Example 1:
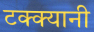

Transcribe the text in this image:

टक्क्यानी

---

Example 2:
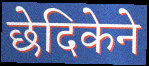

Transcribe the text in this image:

छेदिकेने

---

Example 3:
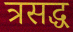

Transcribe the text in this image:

त्रसद्ध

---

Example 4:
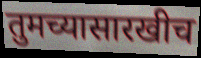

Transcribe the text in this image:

तुमच्यासारखीच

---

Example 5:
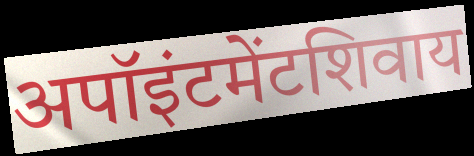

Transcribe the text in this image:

अपॉइंटमेंटशिवाय